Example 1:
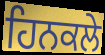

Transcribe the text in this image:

ਹਿਨਕਲੇ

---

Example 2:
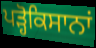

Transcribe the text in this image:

ਪੜ੍ਹੋਕਿਸਾਨਾਂ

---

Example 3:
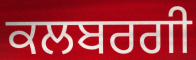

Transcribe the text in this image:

ਕਲਬਰਗੀ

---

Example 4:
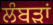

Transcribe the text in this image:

ਲੰਬੜਾਂ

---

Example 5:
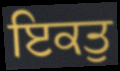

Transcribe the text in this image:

ਇਕਤੁ